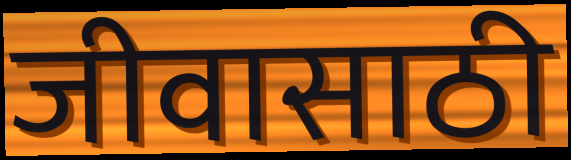
जीवासाठी